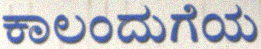
ಕಾಲಂದುಗೆಯ